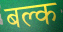
बल्क